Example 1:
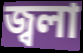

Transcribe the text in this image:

জ্বলা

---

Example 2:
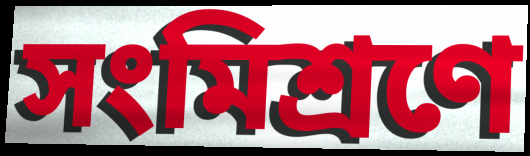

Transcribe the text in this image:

সংমিশ্ৰণে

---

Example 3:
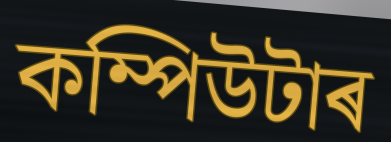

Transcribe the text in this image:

কম্পিউটাৰ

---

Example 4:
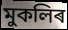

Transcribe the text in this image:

মুকলিৰ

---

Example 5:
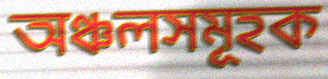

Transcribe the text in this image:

অঞ্চলসমূহক